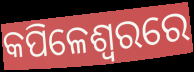
କପିଳେଶ୍ୱରରେ